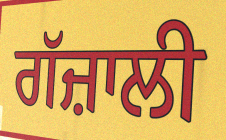
ਗੱਜ਼ਾਲੀ